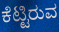
ಕೆಟ್ಟಿರುವ